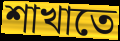
শাখাতে